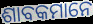
ଶାବକମାନେ